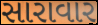
સારાવાર